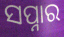
ସପ୍ନାର